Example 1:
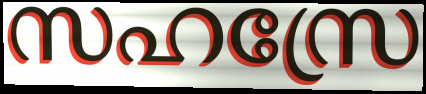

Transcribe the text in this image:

സഹസ്രേ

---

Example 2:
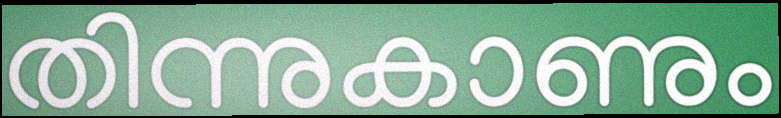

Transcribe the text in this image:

തിന്നുകാണും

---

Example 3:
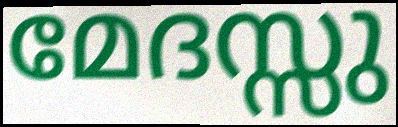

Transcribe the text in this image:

മേദസ്സു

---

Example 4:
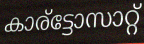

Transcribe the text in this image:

കാര്ട്ടോസാറ്റ്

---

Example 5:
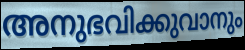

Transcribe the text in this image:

അനുഭവിക്കുവാനും